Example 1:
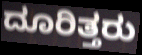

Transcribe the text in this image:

ದೂರಿತ್ತರು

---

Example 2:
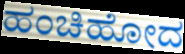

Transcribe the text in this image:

ಹಂಚಿಹೋದ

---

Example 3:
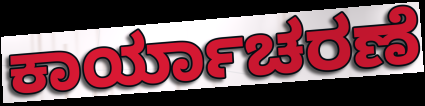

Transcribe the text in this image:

ಕಾರ್ಯಾಚರಣೆ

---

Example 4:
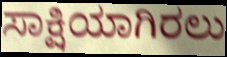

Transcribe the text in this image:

ಸಾಕ್ಷಿಯಾಗಿರಲು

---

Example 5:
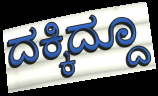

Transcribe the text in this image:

ದಕ್ಕಿದ್ದೂ